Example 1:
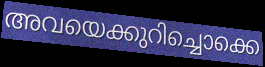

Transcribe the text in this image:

അവയെക്കുറിച്ചൊക്കെ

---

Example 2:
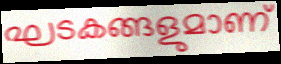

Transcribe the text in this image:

ഘടകങ്ങളുമാണ്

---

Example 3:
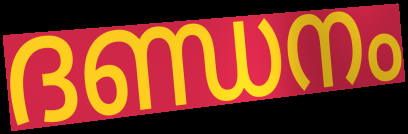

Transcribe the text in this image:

ദണ്ഡനം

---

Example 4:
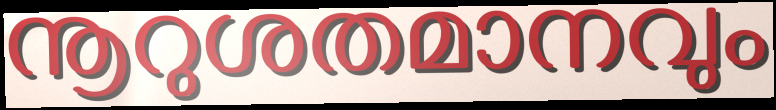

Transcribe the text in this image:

നൂറുശതമാനവും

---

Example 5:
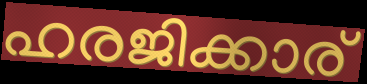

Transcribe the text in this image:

ഹരജിക്കാര്